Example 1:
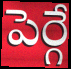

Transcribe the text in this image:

పెర్గే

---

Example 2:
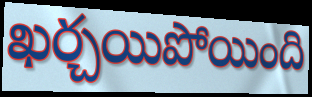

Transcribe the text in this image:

ఖర్చయిపోయింది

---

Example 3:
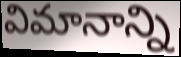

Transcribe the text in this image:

విమానాన్ని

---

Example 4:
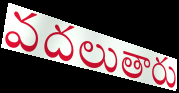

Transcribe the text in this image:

వదలుతారు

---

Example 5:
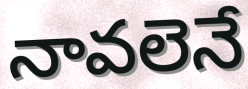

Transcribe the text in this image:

నావలెనే